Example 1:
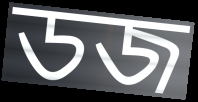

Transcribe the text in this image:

ডজ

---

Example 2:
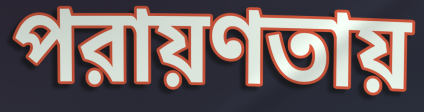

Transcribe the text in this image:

পরায়ণতায়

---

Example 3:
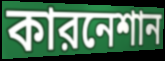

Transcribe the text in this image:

কারনেশান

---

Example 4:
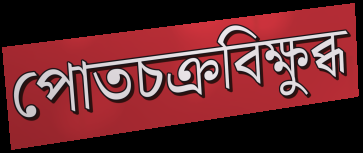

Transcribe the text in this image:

পোতচক্রবিক্ষুব্ধ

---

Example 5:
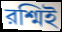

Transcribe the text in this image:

রশ্মিই